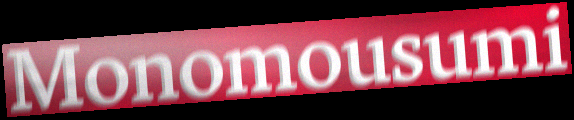
Monomousumi